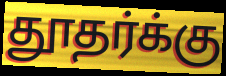
தூதர்க்கு